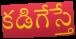
కడిగేస్తే